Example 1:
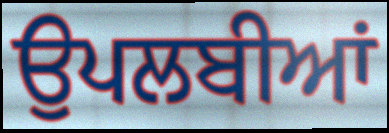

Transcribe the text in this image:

ਉਪਲਬੀਆਂ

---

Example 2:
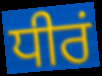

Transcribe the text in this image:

ਧੀਰਂ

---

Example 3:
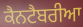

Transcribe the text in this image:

ਕੈਨਟੈਬਰੀਆ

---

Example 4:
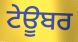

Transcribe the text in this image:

ਟੇਊਬਰ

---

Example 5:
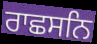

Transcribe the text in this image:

ਰਾਛਸਨਿ